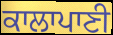
ਕਾਲਾਪਾਣੀ